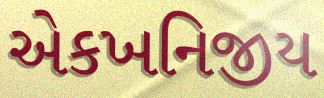
એકખનિજીય